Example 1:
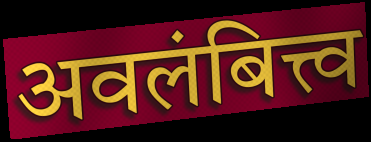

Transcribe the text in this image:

अवलंबित्त्व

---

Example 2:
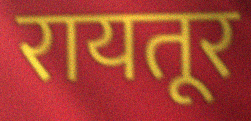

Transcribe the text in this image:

रायतूर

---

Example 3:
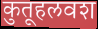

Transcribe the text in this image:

कुतूहलवश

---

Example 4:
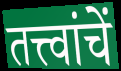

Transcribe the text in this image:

तत्त्वांचें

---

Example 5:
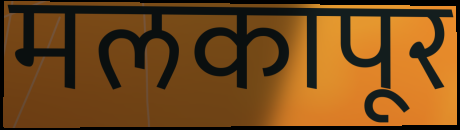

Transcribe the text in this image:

मलकापूर